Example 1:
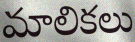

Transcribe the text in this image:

మాలికలు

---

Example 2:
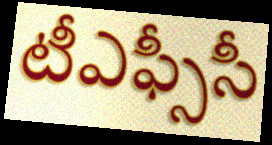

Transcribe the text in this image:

టీఎఫ్సీసీ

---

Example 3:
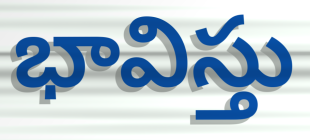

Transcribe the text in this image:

భావిస్తు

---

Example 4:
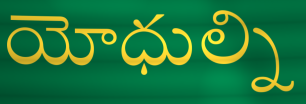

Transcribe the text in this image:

యోధుల్ని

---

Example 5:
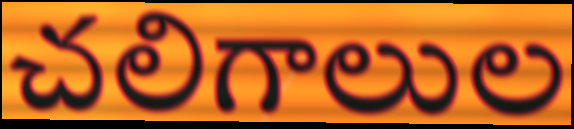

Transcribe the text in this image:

చలిగాలుల